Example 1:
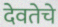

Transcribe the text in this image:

देवतेचे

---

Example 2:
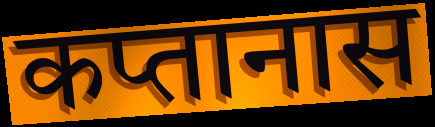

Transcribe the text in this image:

कप्तानास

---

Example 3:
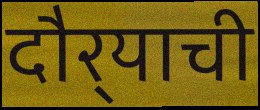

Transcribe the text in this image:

दौर्‍याची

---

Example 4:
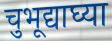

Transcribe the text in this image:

चुभूद्याघ्या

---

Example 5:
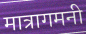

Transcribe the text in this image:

मात्रागमनी